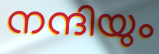
നന്ദിയും